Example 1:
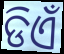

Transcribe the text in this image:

ଡିଏଁ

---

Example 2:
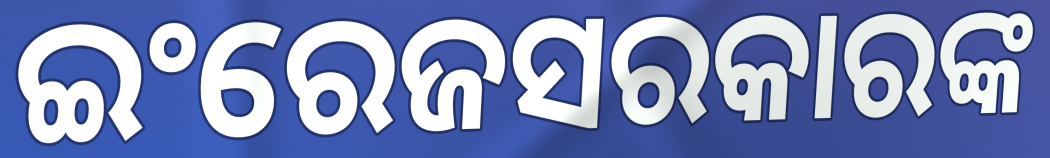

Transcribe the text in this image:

ଇଂରେଜସରକାରଙ୍କ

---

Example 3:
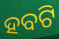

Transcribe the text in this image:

ହବଟି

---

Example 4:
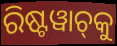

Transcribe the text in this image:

ରିଷ୍ଟୱାଚ୍‌କୁ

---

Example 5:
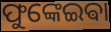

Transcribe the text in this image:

ଫୁଙ୍କେଇଵା